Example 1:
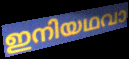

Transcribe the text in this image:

ഇനിയഥവാ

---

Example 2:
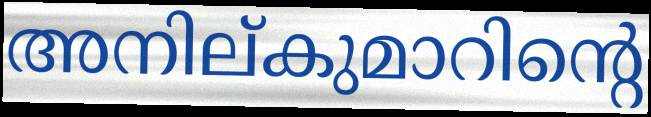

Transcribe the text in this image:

അനില്കുമാറിന്റെ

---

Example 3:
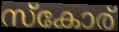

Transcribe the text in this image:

സ്കോര്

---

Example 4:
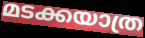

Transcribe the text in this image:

മടക്കയാത്ര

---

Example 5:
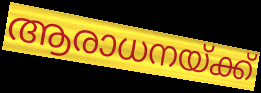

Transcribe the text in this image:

ആരാധനയ്ക്ക്